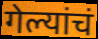
गेल्यांचं